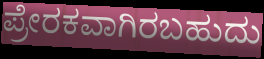
ಪ್ರೇರಕವಾಗಿರಬಹುದು